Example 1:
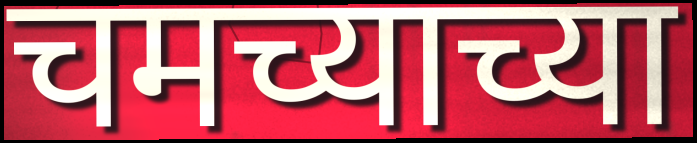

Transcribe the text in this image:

चमच्याच्या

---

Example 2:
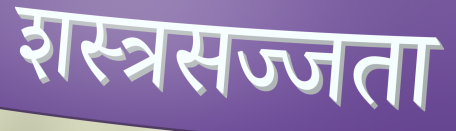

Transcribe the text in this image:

शस्त्रसज्जता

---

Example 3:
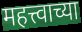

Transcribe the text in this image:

महत्त्वाच्या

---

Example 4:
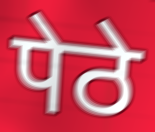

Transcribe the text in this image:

पेठे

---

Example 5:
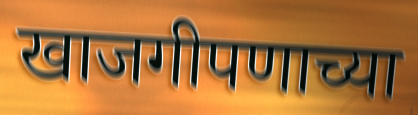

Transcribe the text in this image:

खाजगीपणाच्या